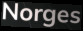
Norges